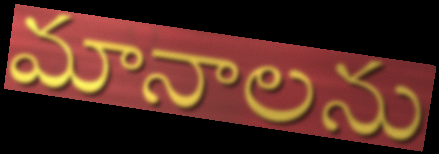
మానాలను